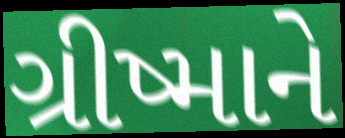
ગ્રીષ્માને